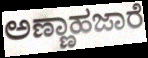
ಅಣ್ಣಾಹಜಾರೆ